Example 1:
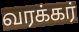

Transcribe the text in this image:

வரக்கர்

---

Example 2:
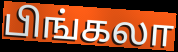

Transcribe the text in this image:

பிங்கலா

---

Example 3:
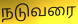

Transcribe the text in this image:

நடுவரை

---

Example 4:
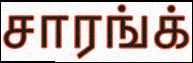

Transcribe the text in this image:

சாரங்க்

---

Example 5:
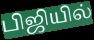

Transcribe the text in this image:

பிஜியில்